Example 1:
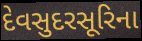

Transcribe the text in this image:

દેવસુદરસૂરિના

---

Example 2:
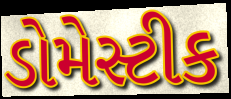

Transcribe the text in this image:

ડોમેસ્ટીક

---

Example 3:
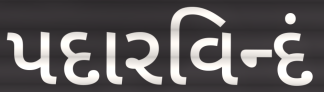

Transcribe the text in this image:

પદારવિન્દં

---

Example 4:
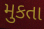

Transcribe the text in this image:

મુકતા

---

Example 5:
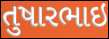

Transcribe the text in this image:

તુષારભાઇ